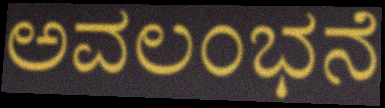
ಅವಲಂಭನೆ